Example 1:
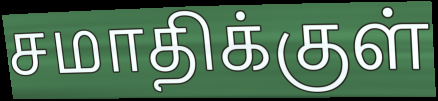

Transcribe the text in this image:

சமாதிக்குள்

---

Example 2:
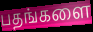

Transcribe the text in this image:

பதங்களை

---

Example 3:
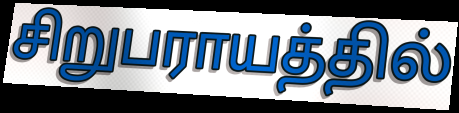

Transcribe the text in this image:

சிறுபராயத்தில்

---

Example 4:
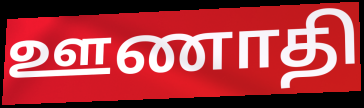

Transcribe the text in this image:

ஊணாதி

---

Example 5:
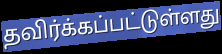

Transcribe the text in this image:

தவிர்க்கப்பட்டுள்ளது